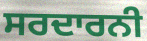
ਸਰਦਾਰਨੀ